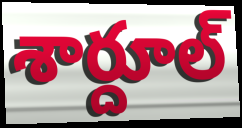
శార్దూల్